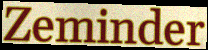
Zeminder